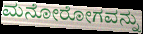
ಮನೋರೋಗವನ್ನು